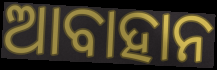
ଆବାହାନ